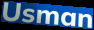
Usman